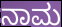
ನಾಮ